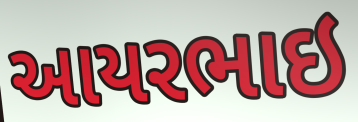
આયરભાઇ